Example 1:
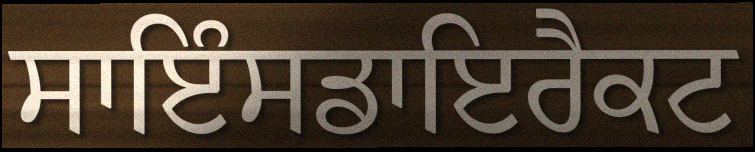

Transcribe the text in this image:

ਸਾਇੰਸਡਾਇਰੈਕਟ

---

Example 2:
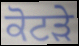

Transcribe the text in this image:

ਕੋਟੜੇ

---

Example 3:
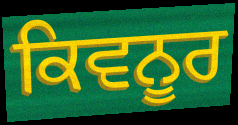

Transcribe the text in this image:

ਕਿਵਨੂਰ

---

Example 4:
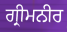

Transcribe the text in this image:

ਗ੍ਰੀਮਨੀਰ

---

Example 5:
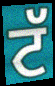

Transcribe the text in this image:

ਟੱ